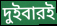
দুইবারই